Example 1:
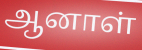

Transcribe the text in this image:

ஆனாள்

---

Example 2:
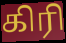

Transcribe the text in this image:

கிரி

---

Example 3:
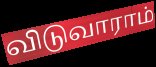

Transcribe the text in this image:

விடுவாராம்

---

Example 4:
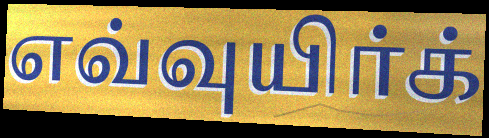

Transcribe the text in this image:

எவ்வுயிர்க்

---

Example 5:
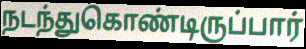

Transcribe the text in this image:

நடந்துகொண்டிருப்பார்